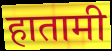
हातामी